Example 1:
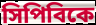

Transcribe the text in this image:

সিপিবিকে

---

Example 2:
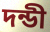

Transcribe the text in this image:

দন্ডী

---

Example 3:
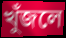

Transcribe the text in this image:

খুঁজলে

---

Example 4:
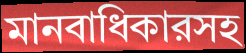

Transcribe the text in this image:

মানবাধিকারসহ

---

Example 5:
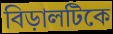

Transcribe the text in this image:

বিড়ালটিকে